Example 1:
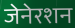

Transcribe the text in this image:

जेनेरशन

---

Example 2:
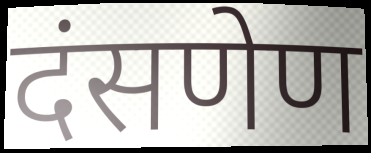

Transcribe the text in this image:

दंसणेण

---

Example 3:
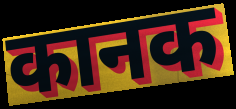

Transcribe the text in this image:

कानक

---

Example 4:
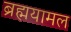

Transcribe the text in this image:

ब्रह्मयामल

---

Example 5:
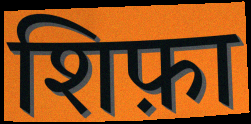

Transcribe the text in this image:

शिफ़ा